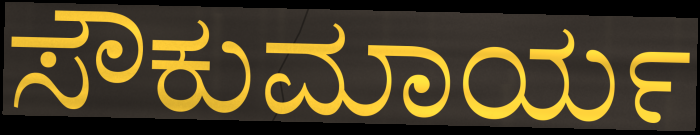
ಸೌಕುಮಾರ್ಯ